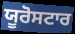
ਯੂਰੋਸਟਾਰ